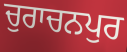
ਚੁਰਾਚਨਪੁਰ